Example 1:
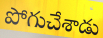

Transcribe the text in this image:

పోగుచేశాడు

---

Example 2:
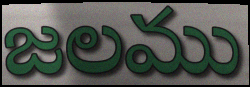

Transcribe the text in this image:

జలము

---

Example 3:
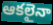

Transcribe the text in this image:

ఆకలైనా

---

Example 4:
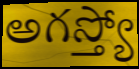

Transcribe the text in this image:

అగస్త్యో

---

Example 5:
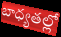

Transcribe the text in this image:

బాధ్యతల్లో